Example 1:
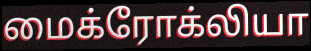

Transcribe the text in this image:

மைக்ரோக்லியா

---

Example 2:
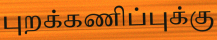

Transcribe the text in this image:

புறக்கணிப்புக்கு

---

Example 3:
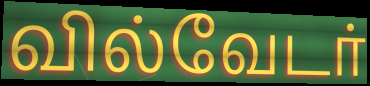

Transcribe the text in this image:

வில்வேடர்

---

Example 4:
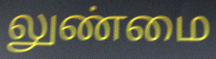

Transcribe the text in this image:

லுண்மை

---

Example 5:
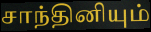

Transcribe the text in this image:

சாந்தினியும்